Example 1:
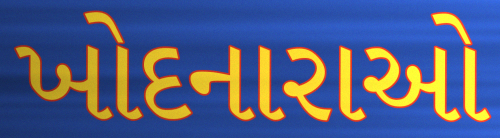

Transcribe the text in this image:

ખોદનારાઓ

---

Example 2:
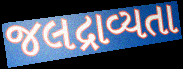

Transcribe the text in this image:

જલદ્રાવ્યતા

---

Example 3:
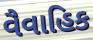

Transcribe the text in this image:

વૈવાહિક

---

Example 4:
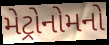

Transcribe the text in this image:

મેટ્રોનોમનો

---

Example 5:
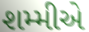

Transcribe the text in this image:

શમ્મીએ